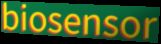
biosensor